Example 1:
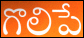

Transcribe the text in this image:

గొలిపే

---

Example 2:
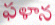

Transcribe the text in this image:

ఫళాన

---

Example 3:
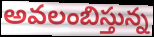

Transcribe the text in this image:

అవలంబిస్తున్న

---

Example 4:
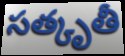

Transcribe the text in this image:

సత్కృతీ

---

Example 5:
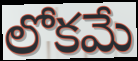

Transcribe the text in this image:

లోకమే